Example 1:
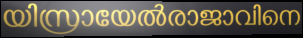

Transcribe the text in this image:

യിസ്രായേൽരാജാവിനെ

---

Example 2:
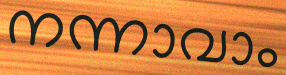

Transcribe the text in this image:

നന്നാവാം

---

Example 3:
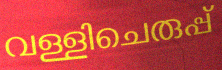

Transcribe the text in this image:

വള്ളിചെരുപ്പ്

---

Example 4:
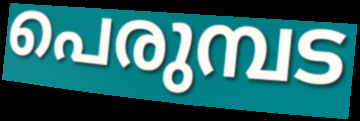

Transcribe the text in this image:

പെരുമ്പട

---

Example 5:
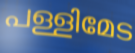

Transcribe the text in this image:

പള്ളിമേട